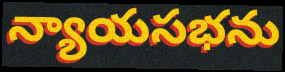
న్యాయసభను